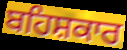
ਬਹਿਸ਼ਕਾਰ